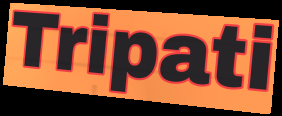
Tripati